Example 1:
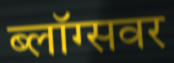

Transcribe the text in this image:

ब्लॉग्सवर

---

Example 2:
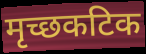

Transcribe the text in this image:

मृच्छकटिक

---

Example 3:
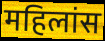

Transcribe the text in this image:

महिलांस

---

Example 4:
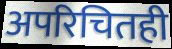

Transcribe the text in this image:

अपरिचितही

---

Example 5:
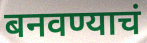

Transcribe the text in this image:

बनवण्याचं